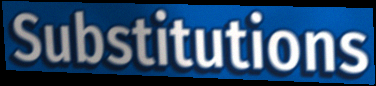
Substitutions